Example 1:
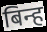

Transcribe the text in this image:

बिन्ह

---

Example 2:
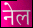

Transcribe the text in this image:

नेल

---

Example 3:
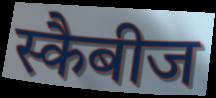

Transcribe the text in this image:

स्कैबीज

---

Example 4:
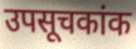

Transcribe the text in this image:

उपसूचकांक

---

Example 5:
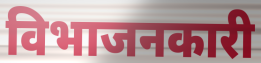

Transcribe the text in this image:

विभाजनकारी